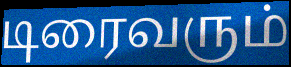
டிரைவரும்